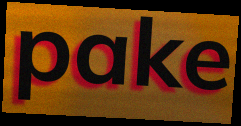
pake